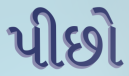
પીછો